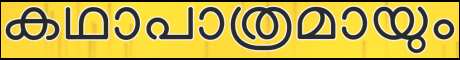
കഥാപാത്രമായും